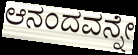
ಆನಂದವನ್ನೇ